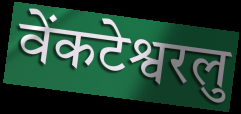
वेंकटेश्वरलु